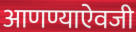
आणण्याऐवजी